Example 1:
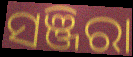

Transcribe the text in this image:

ସଞ୍ଜିରା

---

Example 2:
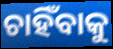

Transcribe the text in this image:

ଚାହିଁବାକୁ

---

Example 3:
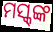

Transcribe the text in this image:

ମସ୍କ୍‌ଙ୍କ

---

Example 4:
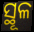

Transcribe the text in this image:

ସ୍ଥୂଳ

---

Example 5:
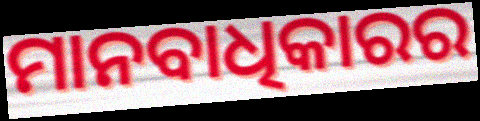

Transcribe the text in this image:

ମାନବାଧିକାରର